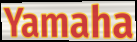
Yamaha